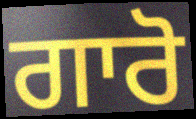
ਗਾਰੋ